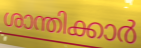
ശാന്തിക്കാർ